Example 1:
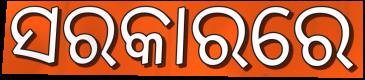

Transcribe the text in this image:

ସରକାରରେ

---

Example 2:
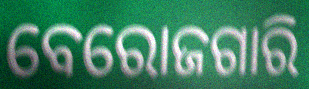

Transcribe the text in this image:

ବେରୋଜଗାରି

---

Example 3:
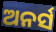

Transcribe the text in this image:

ଅନର୍ସ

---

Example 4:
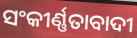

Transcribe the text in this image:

ସଂକୀର୍ଣ୍ଣତାବାଦୀ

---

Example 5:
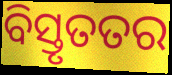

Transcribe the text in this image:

ବିସ୍ତୃତତର